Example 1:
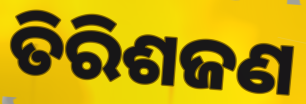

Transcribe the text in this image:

ତିରିଶଜଣ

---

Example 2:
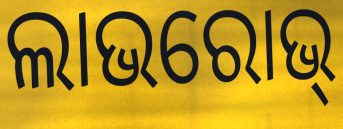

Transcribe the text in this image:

ଲାଭରୋଭ୍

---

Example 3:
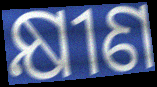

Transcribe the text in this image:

କ୍ଷୀଣ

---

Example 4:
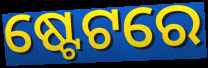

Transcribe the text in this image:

ଷ୍ଟେଟରେ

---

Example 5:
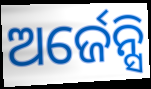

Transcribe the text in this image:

ଅର୍ଜେନ୍ସି